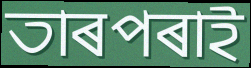
তাৰপৰাই